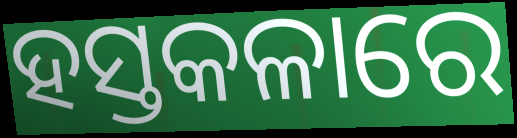
ହସ୍ତକଳାରେ